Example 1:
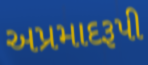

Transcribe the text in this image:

અપ્રમાદરૂપી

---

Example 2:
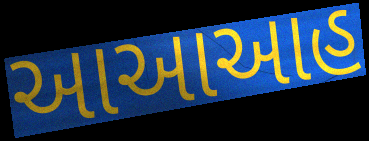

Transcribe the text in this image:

આઆઆહ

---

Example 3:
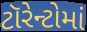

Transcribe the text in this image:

ટૉરેન્ટોમાં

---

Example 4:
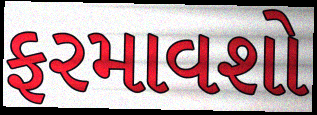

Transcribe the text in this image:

ફરમાવશો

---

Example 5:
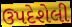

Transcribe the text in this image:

ઉપદેશેલી